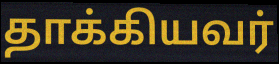
தாக்கியவர்